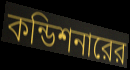
কন্ডিশনারের